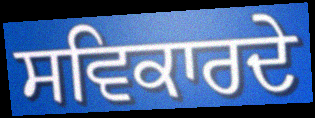
ਸਵਿਕਾਰਦੇ